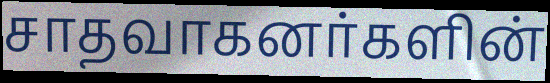
சாதவாகனர்களின்